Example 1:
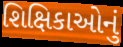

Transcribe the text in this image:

શિક્ષિકાઓનું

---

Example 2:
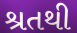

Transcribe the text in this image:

શ્રતથી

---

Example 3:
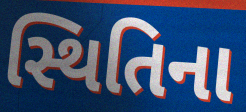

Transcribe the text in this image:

સ્થિતિના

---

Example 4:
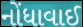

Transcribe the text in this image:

નોંધાવાઈ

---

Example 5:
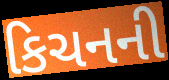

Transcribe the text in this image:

કિચનની